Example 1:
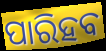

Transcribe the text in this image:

ପାରିହବ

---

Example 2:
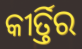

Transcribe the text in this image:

କୀର୍ତ୍ତିର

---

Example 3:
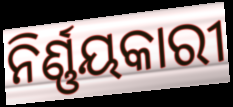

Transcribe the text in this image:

ନିର୍ଣ୍ଣୟକାରୀ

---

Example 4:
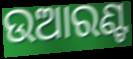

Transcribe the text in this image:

ଉଆରଣ୍ଟ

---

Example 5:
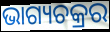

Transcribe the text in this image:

ଭାଗ୍ୟଚକ୍ରର